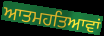
ਆਤਮਹਤਿਆਵਾਂ